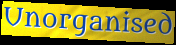
Unorganised